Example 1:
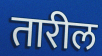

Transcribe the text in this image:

तारील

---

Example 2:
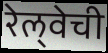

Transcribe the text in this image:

रेल्वेची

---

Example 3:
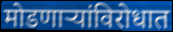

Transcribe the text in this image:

मोडणाऱ्यांविरोधात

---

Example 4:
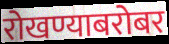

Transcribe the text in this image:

रोखण्याबरोबर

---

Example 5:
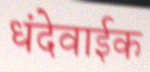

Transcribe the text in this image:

धंदेवाईक